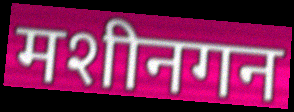
मशीनगन